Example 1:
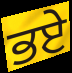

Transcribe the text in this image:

ਭਏ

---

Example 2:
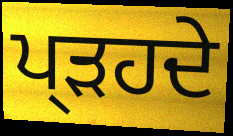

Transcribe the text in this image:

ਪ੍ੜਹਦੇ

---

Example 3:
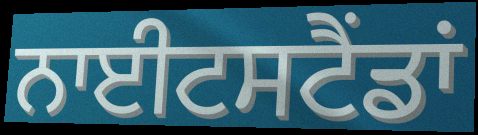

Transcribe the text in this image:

ਨਾਈਟਸਟੈਂਡਾਂ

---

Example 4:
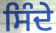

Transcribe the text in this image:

ਸਿੰਦੇ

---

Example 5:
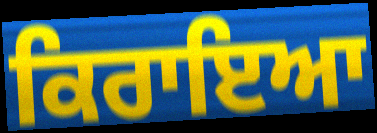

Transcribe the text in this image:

ਕਿਰਾਇਆ